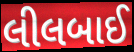
લીલબાઈ